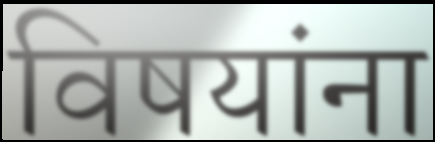
विषयांना